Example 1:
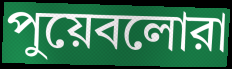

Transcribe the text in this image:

পুয়েবলোরা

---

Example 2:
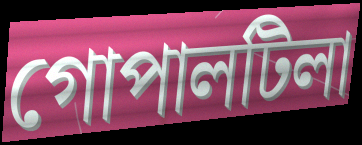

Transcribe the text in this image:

গোপালটিলা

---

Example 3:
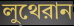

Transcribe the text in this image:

লুথেরান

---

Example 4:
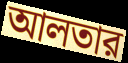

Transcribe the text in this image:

আলতার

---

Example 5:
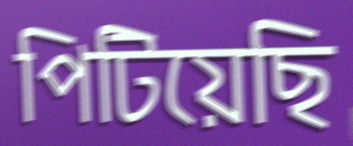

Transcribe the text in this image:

পিটিয়েছি